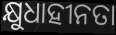
କ୍ଷୁଧାହୀନତା